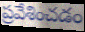
ప్రవేశించడం